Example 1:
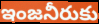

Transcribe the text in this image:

ఇంజనీరుకు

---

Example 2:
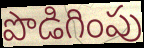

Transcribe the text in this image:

పొడిగింపు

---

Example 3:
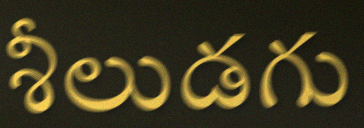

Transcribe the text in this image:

శీలుడగు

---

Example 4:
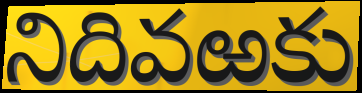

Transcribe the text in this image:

నిదివఱకు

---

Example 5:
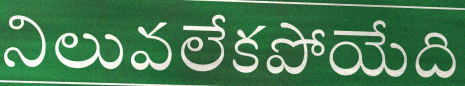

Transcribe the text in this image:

నిలువలేకపోయేది